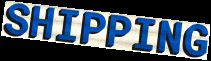
SHIPPING